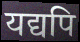
यद्यपि